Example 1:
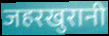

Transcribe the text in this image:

जहरखुरानी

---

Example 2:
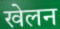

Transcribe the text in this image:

खेलन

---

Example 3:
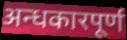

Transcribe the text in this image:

अन्धकारपूर्ण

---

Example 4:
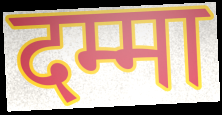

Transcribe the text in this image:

दम्मा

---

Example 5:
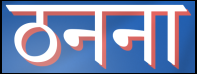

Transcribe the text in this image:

ठनना